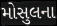
મોસુલના